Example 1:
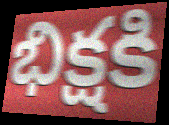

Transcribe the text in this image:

భిక్షకి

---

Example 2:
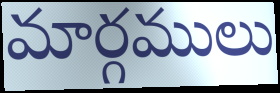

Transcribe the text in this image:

మార్గములు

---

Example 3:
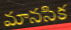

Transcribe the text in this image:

మానసిక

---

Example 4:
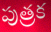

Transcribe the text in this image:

పుత్రక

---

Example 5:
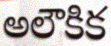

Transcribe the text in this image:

అలౌకిక